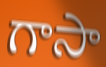
గాసా